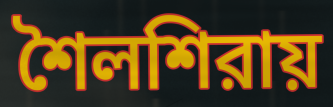
শৈলশিরায়